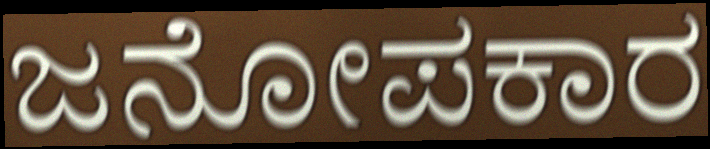
ಜನೋಪಕಾರ